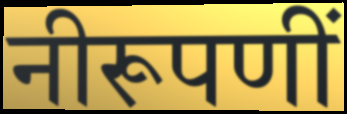
नीरूपणीं